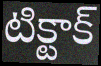
టిక్టాక్